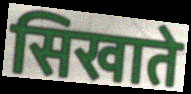
सिखाते